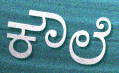
ಕೌಲೆ